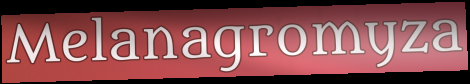
Melanagromyza